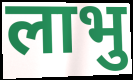
लाभु